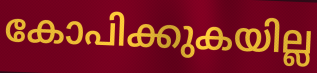
കോപിക്കുകയില്ല